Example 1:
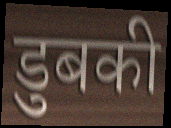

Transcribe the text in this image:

डुबकी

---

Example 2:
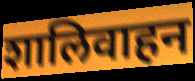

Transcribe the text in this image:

शालिवाहन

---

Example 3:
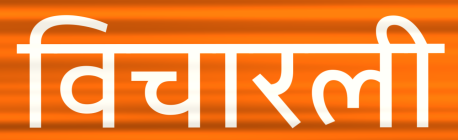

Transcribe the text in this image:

विचारली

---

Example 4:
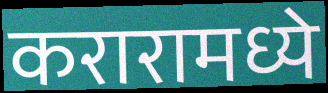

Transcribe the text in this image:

करारामध्ये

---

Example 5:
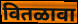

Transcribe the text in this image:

वितळावा